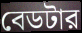
বেডটার